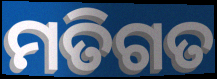
ମତିଗତ